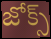
జోక్స్